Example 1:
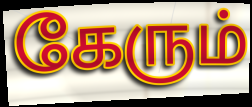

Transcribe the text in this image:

கேரும்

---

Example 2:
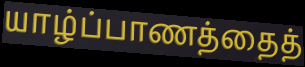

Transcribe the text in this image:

யாழ்ப்பாணத்தைத்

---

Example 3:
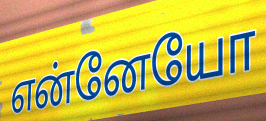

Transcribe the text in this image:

என்னேயோ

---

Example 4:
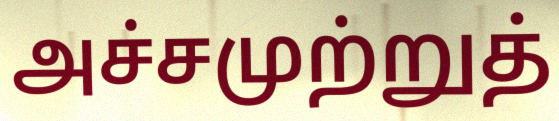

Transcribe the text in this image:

அச்சமுற்றுத்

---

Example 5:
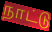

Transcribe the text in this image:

நாட்டு